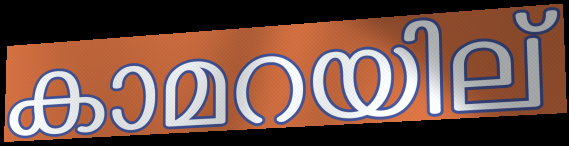
കാമറയില്